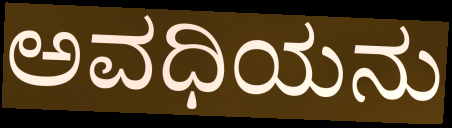
ಅವಧಿಯನು